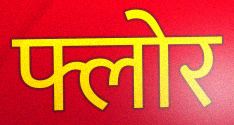
फ्लोर